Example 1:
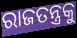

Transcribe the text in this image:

ରାଜତନ୍ତ୍ରକୁ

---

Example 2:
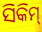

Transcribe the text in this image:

ସିକିମ୍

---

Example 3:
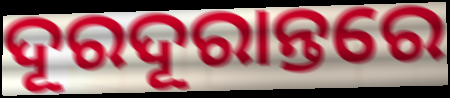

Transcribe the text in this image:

ଦୂରଦୂରାନ୍ତରେ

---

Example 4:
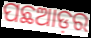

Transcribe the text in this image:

ପଛଆଡ଼ର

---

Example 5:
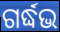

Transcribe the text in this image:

ଗର୍ଦ୍ଧଭ